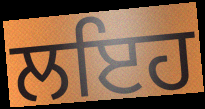
ਲਇਹ